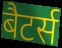
बैटर्स